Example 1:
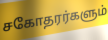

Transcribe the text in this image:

சகோதரர்களும்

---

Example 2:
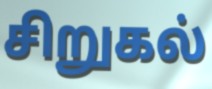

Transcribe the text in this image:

சிறுகல்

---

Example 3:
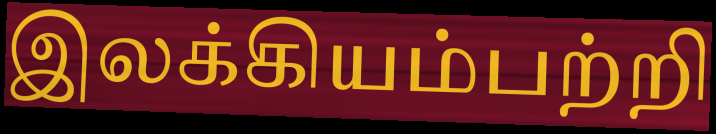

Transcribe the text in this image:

இலக்கியம்பற்றி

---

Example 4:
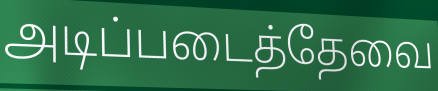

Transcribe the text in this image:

அடிப்படைத்தேவை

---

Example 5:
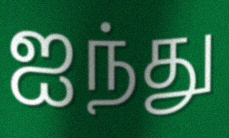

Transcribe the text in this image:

ஐந்து